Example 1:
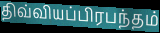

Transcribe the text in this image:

திவ்வியப்பிரபந்தம்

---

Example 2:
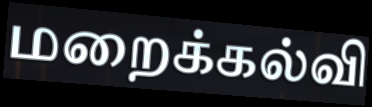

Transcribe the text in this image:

மறைக்கல்வி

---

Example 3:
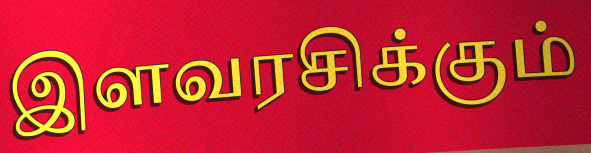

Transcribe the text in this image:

இளவரசிக்கும்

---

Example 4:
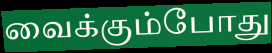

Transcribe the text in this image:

வைக்கும்போது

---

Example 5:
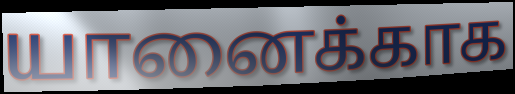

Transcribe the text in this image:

யானைக்காக